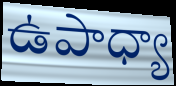
ఉపాధ్యా